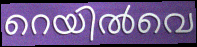
റെയിൽവെ